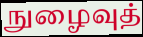
நுழைவுத்